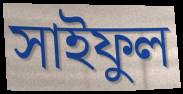
সাইফুল